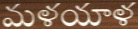
మళయాళ